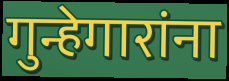
गुन्हेगारांना